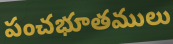
పంచభూతములు